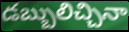
డబ్బులిచ్చినా